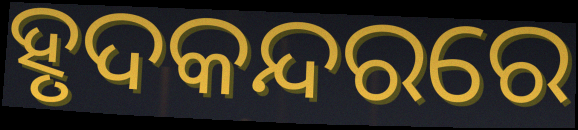
ହୃଦକନ୍ଦରରେ